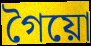
গৈয়ো